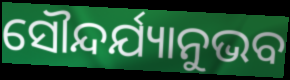
ସୌନ୍ଦର୍ଯ୍ୟାନୁଭବ